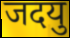
जदयु